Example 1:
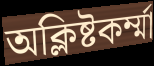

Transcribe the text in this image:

অক্লিষ্টকর্ম্মা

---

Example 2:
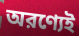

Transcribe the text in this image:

অরণ্যেই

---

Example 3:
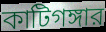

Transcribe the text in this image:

কাটিগঙ্গার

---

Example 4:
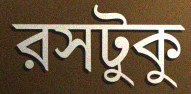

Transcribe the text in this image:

রসটুকু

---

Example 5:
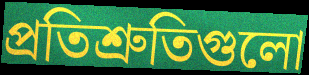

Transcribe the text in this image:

প্রতিশ্রুতিগুলো